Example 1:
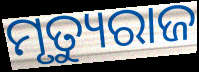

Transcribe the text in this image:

ମୃତ୍ୟୁରାଜ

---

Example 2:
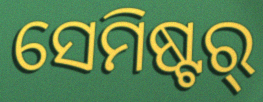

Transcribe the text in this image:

ସେମିଷ୍ଟର୍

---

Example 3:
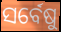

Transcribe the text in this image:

ସର୍ବେଷୁ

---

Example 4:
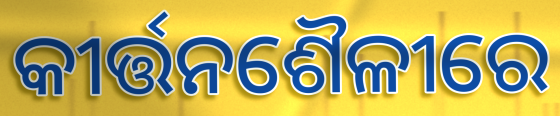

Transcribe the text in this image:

କୀର୍ତ୍ତନଶୈଳୀରେ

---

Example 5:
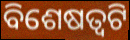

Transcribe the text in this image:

ବିଶେଷତ୍ୱଟି